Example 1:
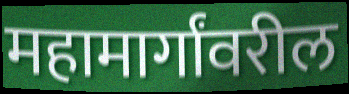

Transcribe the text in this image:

महामार्गांवरील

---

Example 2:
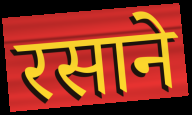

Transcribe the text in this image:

रसाने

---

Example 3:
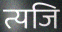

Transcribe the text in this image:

त्यजि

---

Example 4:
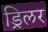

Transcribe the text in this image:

ड्रिलर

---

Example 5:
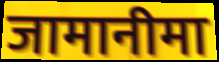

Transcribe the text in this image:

जामानीमा